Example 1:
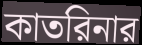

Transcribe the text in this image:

কাতরিনার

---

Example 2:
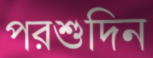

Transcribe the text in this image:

পরশুদিন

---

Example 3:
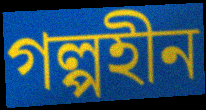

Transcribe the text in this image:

গল্পহীন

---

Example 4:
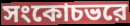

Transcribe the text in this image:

সংকোচভরে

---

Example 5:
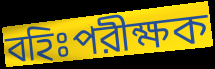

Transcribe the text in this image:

বহিঃপরীক্ষক